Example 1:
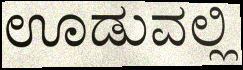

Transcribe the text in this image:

ಊಡುವಲ್ಲಿ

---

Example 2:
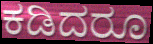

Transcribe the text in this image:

ಕಡಿದರೂ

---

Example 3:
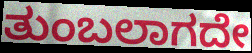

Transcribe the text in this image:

ತುಂಬಲಾಗದೇ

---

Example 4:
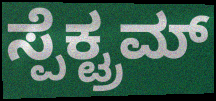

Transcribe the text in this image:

ಸ್ಪೆಕ್ಟ್ರಮ್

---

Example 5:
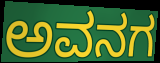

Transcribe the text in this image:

ಅವನಗ